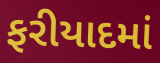
ફરીયાદમાં